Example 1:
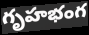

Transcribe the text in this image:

గృహభంగ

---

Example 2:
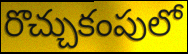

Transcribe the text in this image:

రొచ్చుకంపులో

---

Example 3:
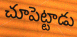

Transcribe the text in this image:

చూపెట్టాడు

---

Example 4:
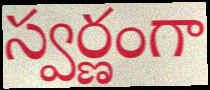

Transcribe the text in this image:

స్వర్ణంగా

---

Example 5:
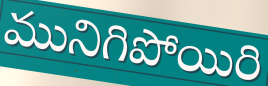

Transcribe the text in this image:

మునిగిపోయిరి